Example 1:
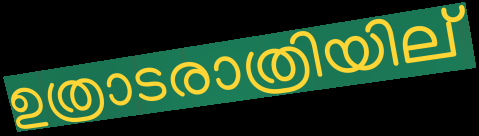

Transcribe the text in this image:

ഉത്രാടരാത്രിയില്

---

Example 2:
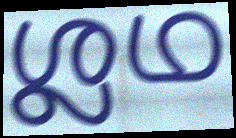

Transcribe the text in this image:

ശ്ലഥ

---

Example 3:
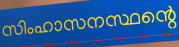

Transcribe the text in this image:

സിംഹാസനസ്ഥന്റെ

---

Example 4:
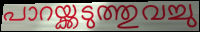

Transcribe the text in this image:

പാറയ്ക്കടുത്തുവച്ചു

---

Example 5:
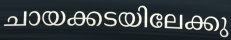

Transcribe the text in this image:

ചായക്കടയിലേക്കു